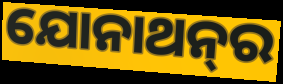
ଯୋନାଥନ୍‍ର